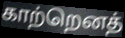
காற்றெனத்